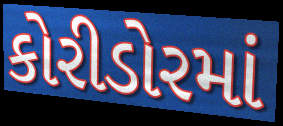
કોરીડોરમાં